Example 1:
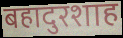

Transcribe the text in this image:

बहादुरशाह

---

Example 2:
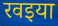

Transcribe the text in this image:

रवइया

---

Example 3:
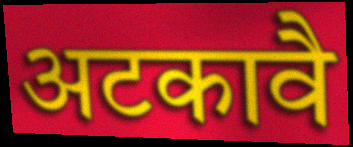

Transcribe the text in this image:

अटकावै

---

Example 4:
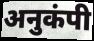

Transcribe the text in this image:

अनुकंपी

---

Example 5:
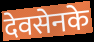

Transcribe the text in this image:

देवसेनके